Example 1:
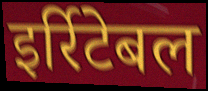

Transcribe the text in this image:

इर्रिटेबल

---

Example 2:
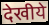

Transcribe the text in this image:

देखीये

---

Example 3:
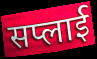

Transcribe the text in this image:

सप्लाई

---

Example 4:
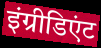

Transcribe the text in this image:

इंग्रीडिएंट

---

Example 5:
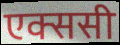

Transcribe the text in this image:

एक्ससी